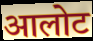
आलोट